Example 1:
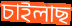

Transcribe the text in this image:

চাইলাছ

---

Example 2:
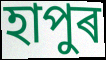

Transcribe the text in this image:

হাপুৰ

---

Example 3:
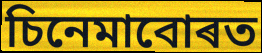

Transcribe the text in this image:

চিনেমাবোৰত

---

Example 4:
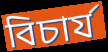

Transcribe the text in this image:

বিচাৰ্য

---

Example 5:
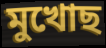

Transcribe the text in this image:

মুখোছ